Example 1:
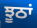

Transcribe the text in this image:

ਝੂਠਾਂ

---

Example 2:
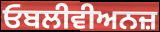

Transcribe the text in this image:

ਓਬਲੀਵੀਅਨਜ਼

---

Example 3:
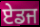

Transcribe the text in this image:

ਏਡਜ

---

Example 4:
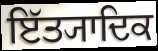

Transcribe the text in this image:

ਇੱਤ੍ਯਾਦਿਕ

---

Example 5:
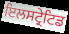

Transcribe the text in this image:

ਇਲਸਟ੍ਰੇਟਿਡ